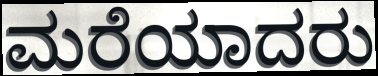
ಮರೆಯಾದರು